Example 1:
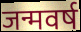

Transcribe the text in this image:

जन्मवर्ष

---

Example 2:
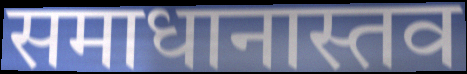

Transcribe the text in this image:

समाधानास्तव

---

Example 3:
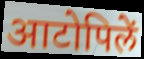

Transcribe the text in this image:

आटोपिलें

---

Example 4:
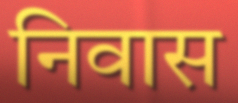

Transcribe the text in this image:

निवास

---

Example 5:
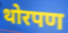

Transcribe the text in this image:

थोरपण